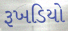
રૂખડિયો